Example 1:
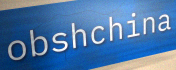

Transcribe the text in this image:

obshchina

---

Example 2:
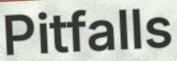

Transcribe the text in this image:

Pitfalls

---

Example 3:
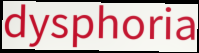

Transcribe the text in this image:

dysphoria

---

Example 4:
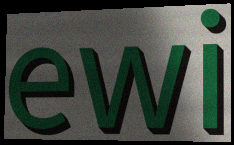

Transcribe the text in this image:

ewi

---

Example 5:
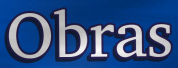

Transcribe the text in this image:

Obras